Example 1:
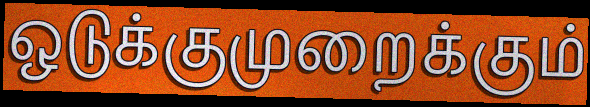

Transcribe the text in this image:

ஒடுக்குமுறைக்கும்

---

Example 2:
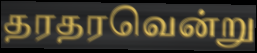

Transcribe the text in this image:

தரதரவென்று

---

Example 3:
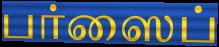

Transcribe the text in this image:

பர்ஸைப்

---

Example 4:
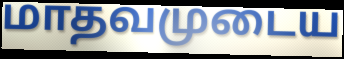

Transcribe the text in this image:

மாதவமுடைய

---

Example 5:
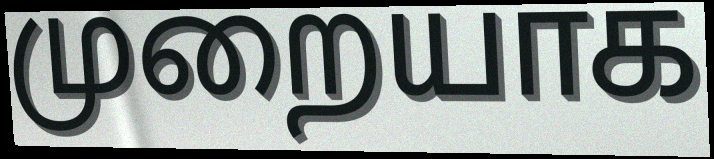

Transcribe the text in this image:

முறையாக